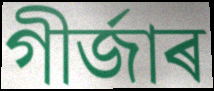
গীৰ্জাৰ